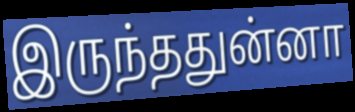
இருந்ததுன்னா